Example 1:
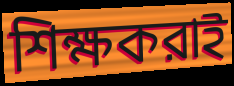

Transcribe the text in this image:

শিক্ষকরাই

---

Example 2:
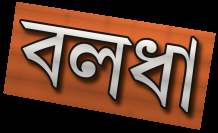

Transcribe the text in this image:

বলধা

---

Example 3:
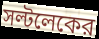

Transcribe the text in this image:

সল্টলেকের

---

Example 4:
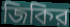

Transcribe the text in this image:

জিকির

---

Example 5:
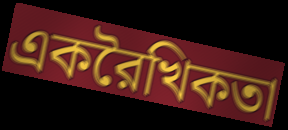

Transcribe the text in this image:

একরৈখিকতা